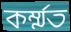
কৰ্ম্মত